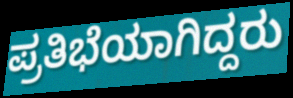
ಪ್ರತಿಭೆಯಾಗಿದ್ದರು